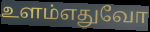
உளம்எதுவோ